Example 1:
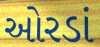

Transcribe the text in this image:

ઓરડાં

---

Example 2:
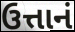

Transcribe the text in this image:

ઉત્તાનં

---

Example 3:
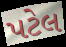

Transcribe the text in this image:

પટેલ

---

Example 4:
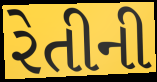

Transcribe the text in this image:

રેતીની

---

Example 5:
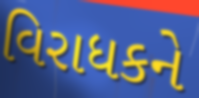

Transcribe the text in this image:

વિરાધકને